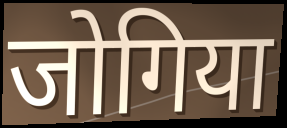
जोगिया